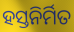
ହସ୍ତନିର୍ମିତ